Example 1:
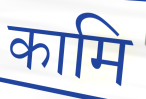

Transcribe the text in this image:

कामि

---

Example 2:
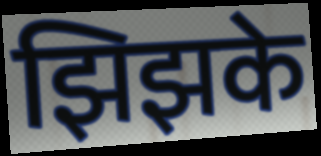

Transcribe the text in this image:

झिझके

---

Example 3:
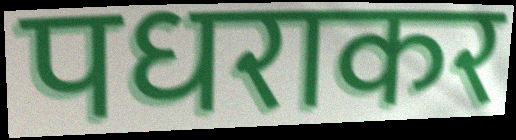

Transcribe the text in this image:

पधराकर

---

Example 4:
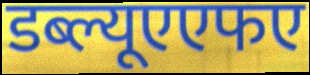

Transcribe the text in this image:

डब्ल्यूएएफए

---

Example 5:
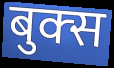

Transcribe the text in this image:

बुक्‍स